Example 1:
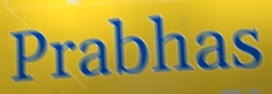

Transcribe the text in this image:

Prabhas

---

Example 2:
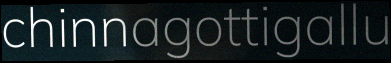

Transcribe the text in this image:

chinnagottigallu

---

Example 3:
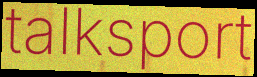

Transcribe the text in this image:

talksport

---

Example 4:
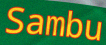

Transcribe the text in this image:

Sambu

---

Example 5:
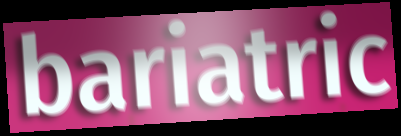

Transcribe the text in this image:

bariatric